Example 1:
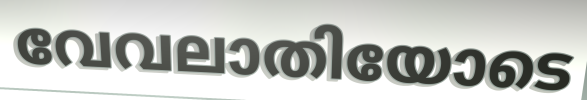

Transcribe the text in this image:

വേവലാതിയോടെ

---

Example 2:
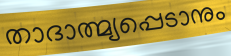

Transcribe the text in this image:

താദാത്മ്യപ്പെടാനും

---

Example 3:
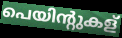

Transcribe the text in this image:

പെയിന്റുകള്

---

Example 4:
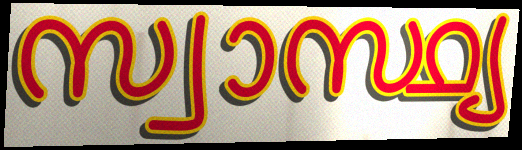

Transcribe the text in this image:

സ്വാസ്ഥ്യ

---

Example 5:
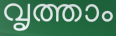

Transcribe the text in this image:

വൃത്താം